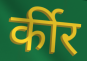
र्कीर